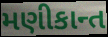
મણીકાન્ત